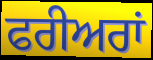
ਫਰੀਅਰਾਂ